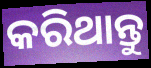
କରିଥାନ୍ତୁ